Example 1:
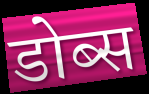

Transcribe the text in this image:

डोब्स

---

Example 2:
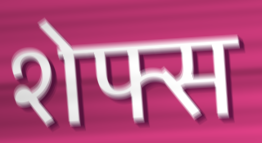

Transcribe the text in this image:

शेफ्स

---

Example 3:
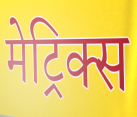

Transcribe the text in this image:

मेट्रिक्स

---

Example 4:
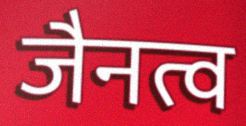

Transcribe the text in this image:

जैनत्व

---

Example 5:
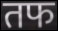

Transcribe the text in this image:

तफ